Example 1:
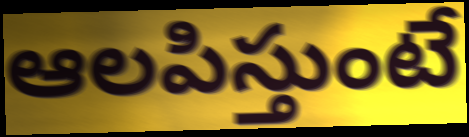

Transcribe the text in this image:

ఆలపిస్తుంటే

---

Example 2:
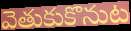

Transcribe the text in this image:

వెతుకుకొనుట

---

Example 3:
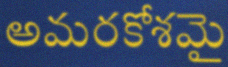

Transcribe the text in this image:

అమరకోశమై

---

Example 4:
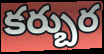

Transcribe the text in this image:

కర్బుర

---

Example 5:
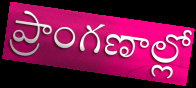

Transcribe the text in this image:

ప్రాంగణాల్లో